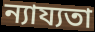
ন্যায্যতা